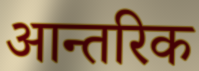
आन्तरिक